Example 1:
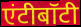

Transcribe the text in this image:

एंटीबॉटी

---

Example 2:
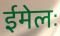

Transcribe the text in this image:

ईमेलः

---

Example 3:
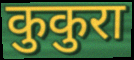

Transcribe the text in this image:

कुकुरा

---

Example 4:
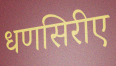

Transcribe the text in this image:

धणसिरीए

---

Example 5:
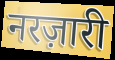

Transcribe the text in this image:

नरज़ारी